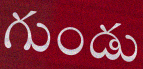
గుండు